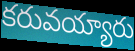
కరువయ్యారు